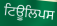
ਟਿਊਲਿਪਸ